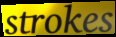
strokes